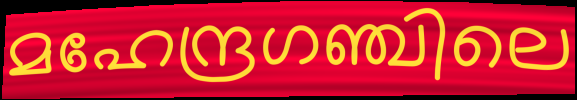
മഹേന്ദ്രഗഞ്ചിലെ